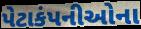
પેટાકંપનીઓના